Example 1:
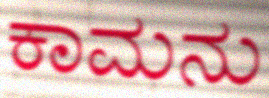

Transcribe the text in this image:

ಕಾಮನು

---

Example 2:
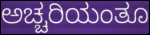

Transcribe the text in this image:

ಅಚ್ಚರಿಯಂತೂ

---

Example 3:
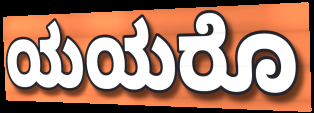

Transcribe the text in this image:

ಯಯರೊ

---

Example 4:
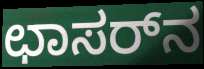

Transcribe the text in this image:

ಛಾಸರ್‌ನ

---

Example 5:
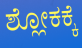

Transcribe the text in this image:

ಶ್ಲೋಕಕ್ಕೆ